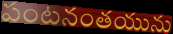
పంటనంతయును